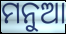
ମନୁଆ